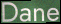
Dane